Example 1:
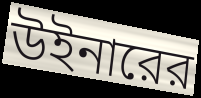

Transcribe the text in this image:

উইনারের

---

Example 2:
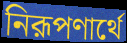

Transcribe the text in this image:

নিরূপণার্থে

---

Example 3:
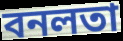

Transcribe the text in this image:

বনলতা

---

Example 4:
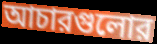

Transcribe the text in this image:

আচারগুলোর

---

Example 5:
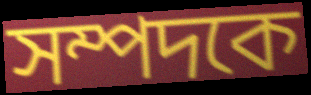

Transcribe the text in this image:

সম্পদকে